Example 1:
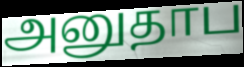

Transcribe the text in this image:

அனுதாப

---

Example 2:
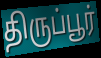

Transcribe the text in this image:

திருப்பூர்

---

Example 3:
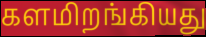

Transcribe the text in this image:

களமிறங்கியது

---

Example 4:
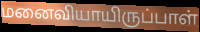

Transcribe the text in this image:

மனைவியாயிருப்பாள்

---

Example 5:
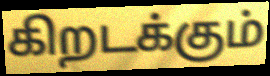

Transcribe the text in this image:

கிறடக்கும்